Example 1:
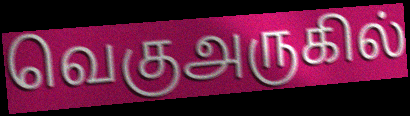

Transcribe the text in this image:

வெகுஅருகில்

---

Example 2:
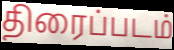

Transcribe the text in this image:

திரைப்படம்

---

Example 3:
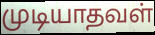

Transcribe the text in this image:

முடியாதவள்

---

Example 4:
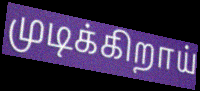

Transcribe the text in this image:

முடிக்கிறாய்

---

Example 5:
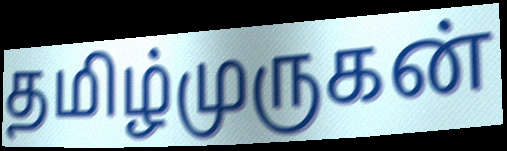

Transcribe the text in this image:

தமிழ்முருகன்